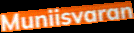
Muniisvaran